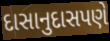
દાસાનુદાસપણે